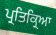
ਪ੍ਰਤਿਕ੍ਰਿਆ